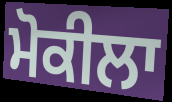
ਮੋਕੀਲਾ